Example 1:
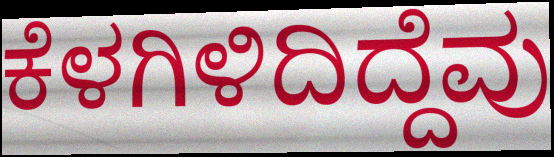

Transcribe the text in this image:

ಕೆಳಗಿಳಿದಿದ್ದೆವು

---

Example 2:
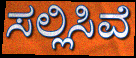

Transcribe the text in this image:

ಸಲ್ಲಿಸಿವೆ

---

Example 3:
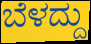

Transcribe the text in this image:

ಬೆಳದ್ದು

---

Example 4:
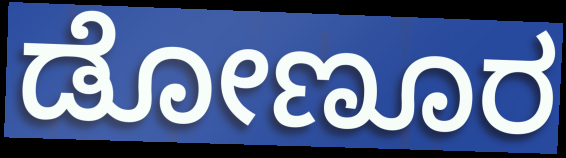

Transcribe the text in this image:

ಡೋಣೂರ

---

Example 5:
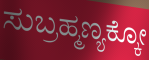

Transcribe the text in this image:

ಸುಬ್ರಹ್ಮಣ್ಯಕ್ಕೋ